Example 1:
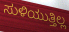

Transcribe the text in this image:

ಸುಳಿಯುತ್ತಿಲ್ಲ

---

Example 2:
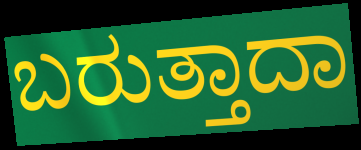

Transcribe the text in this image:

ಬರುತ್ತಾದಾ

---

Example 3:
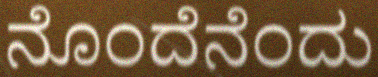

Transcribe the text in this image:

ನೊಂದೆನೆಂದು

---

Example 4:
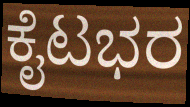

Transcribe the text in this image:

ಕೈಟಭರ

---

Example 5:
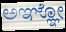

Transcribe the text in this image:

ಅಞ್ಞೋ